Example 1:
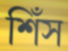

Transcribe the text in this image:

শিঁস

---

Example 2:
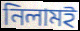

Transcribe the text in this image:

নিলামই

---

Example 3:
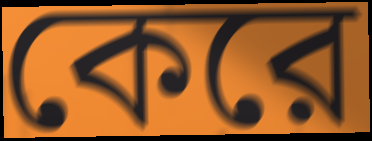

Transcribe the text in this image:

কেরে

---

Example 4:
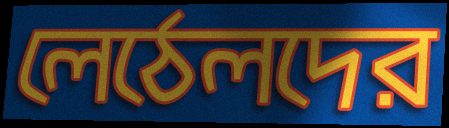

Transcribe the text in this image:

লেঠেলদের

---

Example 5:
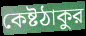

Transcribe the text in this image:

কেষ্টঠাকুর